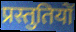
प्रस्तुतियों